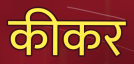
कीकर